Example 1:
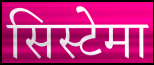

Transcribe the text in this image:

सिस्टेमा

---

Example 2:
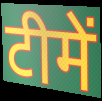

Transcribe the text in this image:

टीमें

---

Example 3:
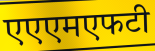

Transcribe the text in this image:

एएएमएफटी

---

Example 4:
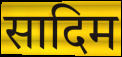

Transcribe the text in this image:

सादिम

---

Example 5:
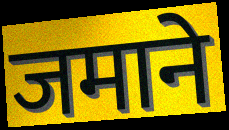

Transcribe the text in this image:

जमाने